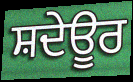
ਸ਼ਦੇਊਰ